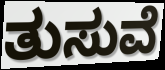
ತುಸುವೆ